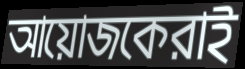
আয়োজকেরাই